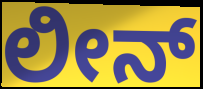
ಲೀನ್